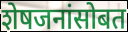
शेषजनांसोबत